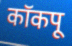
कॉकपू